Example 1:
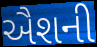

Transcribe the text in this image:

ઐશની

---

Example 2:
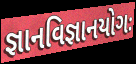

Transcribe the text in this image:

જ્ઞાનવિજ્ઞાનયોગઃ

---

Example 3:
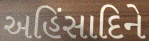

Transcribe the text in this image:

અહિંસાદિને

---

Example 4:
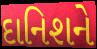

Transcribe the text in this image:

દાનિશને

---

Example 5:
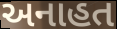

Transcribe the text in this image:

અનાહત